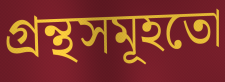
গ্ৰন্থসমূহতো